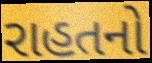
રાહતનો